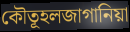
কৌতূহলজাগানিয়া